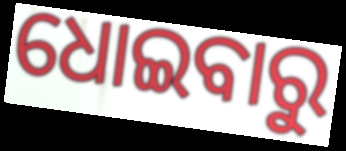
ଧୋଇବାରୁ